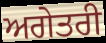
ਅਗੇਤਰੀ